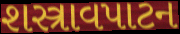
શસ્ત્રાવપાટન